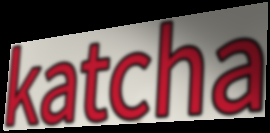
katcha